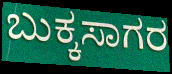
ಬುಕ್ಕಸಾಗರ